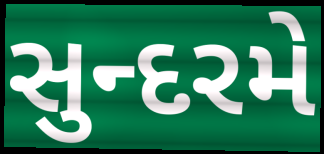
સુન્દરમે